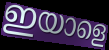
ഇയാളെ